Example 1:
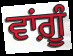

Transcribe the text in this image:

ਵਾਂਗ਼ੂੰ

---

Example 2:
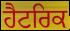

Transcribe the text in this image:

ਹੈਟਰਿਕ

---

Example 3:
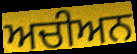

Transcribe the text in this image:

ਅਚੀਅਨ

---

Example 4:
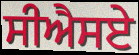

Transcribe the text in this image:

ਸੀਐਸਏ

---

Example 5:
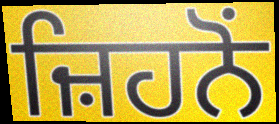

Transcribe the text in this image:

ਜ਼ਿਹਨੋਂ